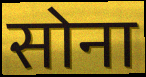
सोना